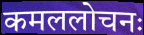
कमललोचनः